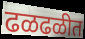
ढळढळीत